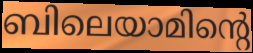
ബിലെയാമിന്റെ